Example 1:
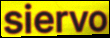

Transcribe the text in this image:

siervo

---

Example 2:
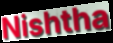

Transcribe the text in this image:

Nishtha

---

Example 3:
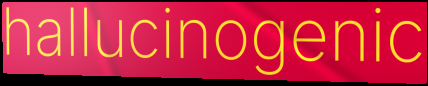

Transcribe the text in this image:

hallucinogenic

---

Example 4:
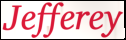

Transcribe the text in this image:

Jefferey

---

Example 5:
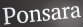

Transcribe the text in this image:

Ponsara